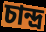
চান্দ্র